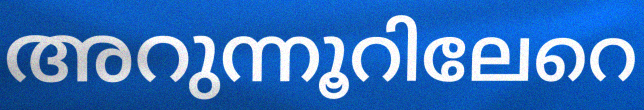
അറുന്നൂറിലേറെ